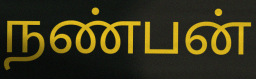
நண்பன்